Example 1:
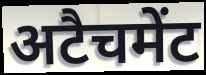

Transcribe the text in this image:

अटैचमेंट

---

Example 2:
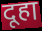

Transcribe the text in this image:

दूहा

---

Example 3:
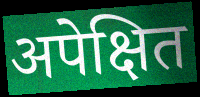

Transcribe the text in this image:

अपेक्षित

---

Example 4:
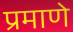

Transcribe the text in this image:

प्रमाणे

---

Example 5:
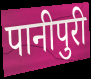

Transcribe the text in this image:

पानीपुरी